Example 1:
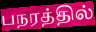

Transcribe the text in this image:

பநரத்தில்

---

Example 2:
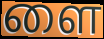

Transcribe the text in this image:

ளை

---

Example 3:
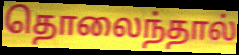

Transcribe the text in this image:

தொலைந்தால்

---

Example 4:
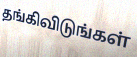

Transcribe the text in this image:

தங்கிவிடுங்கள்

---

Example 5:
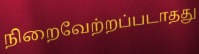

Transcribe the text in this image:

நிறைவேற்றப்படாதது